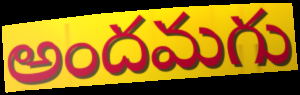
అందమగు